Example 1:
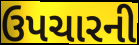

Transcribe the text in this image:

ઉપચારની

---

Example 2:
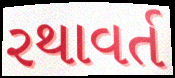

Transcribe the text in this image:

રથાવર્ત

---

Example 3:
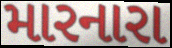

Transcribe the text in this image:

મારનારા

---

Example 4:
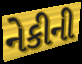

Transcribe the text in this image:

નેકીની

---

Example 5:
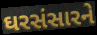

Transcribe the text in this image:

ઘરસંસારને